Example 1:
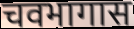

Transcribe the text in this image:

चवभागास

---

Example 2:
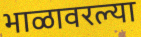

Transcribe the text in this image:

भाळावरल्या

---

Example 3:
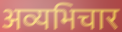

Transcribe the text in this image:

अव्यभिचार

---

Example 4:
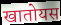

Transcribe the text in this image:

खातोयस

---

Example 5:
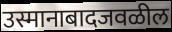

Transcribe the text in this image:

उस्मानाबादजवळील